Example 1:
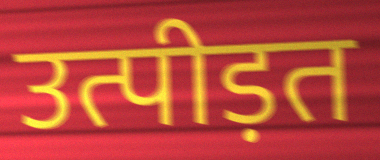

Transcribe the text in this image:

उत्पीड़त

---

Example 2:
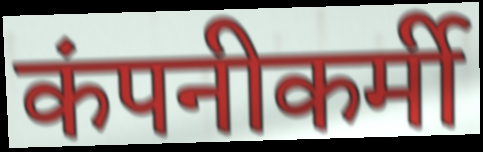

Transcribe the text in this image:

कंपनीकर्मी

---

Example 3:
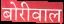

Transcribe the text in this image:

बोरीवाल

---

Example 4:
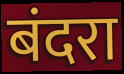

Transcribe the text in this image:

बंदरा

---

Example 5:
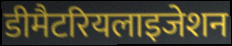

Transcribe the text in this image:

डीमैटरियलाइजेशन